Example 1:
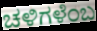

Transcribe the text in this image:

ಚಳಿಗಳೆಂಬ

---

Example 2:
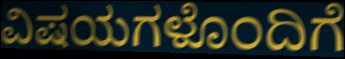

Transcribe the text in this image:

ವಿಷಯಗಳೊಂದಿಗೆ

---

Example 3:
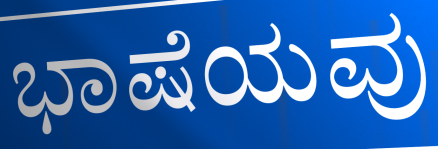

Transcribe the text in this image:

ಭಾಷೆಯವು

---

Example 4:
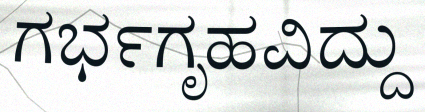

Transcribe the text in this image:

ಗರ್ಭಗೃಹವಿದ್ದು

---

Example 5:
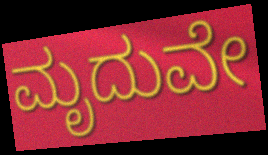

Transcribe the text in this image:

ಮೃದುವೇ